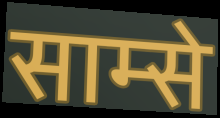
साम्से